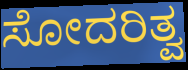
ಸೋದರಿತ್ವ